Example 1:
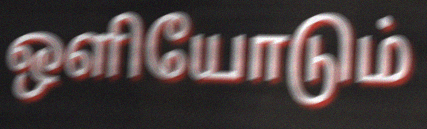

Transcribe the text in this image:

ஒளியோடும்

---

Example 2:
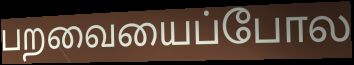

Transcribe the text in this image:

பறவையைப்போல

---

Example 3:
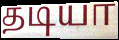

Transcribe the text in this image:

தடியா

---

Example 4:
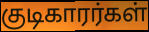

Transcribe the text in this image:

குடிகாரர்கள்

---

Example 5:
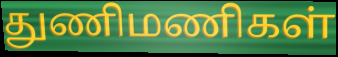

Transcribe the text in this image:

துணிமணிகள்